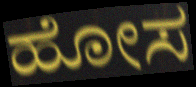
ಹೋಸ